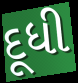
દૂધી